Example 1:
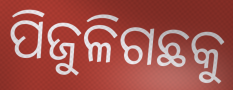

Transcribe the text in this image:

ପିଜୁଳିଗଛକୁ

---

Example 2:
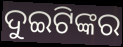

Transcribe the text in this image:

ଦୁଇଟିଙ୍କର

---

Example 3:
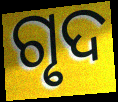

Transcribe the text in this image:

ଗୃଦ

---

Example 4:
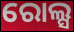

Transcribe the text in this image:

ରୋଲ୍ସ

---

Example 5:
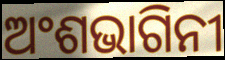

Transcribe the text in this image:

ଅଂଶଭାଗିନୀ